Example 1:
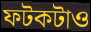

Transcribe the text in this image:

ফটকটাও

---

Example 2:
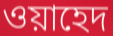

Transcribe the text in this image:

ওয়াহেদ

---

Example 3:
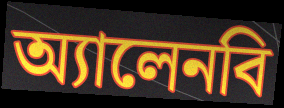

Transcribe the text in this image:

অ্যালেনবি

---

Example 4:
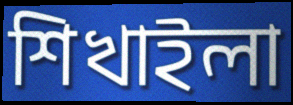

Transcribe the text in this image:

শিখাইলা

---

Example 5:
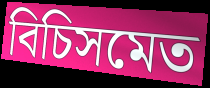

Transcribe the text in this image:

বিচিসমেত